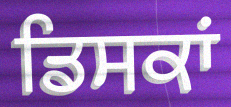
ਡਿਸਕਾਂ